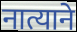
नात्याने